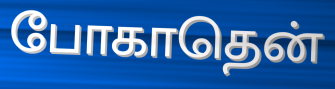
போகாதென்